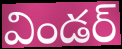
విండర్